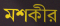
মশকীর